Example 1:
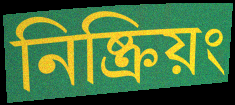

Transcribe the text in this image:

নিষ্ক্রিয়ং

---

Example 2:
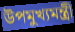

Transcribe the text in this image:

উপমুখ্যমন্ত্রী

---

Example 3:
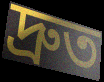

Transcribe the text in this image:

দ্রুত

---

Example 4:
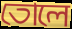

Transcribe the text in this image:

তোলে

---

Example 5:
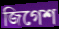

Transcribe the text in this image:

জিগেশ